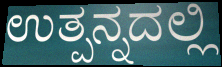
ಉತ್ಪನ್ನದಲ್ಲಿ